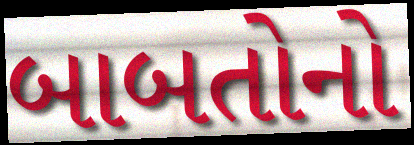
બાબતોનો